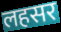
लहसर